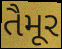
તૈમૂર